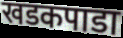
खडकपाडा